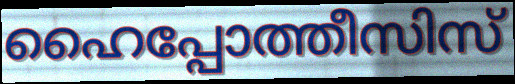
ഹൈപ്പോത്തീസിസ്